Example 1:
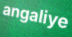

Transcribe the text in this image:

angaliye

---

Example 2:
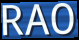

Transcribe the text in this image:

RAO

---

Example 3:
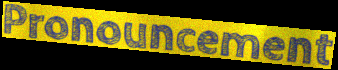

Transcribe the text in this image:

Pronouncement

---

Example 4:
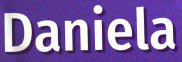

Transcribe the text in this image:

Daniela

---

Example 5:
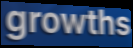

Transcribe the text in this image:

growths